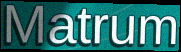
Matrum